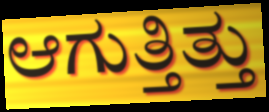
ಆಗುತ್ತಿತ್ತು